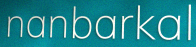
nanbarkal